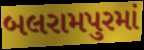
બલરામપુરમાં